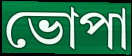
ভোপা